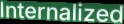
Internalized